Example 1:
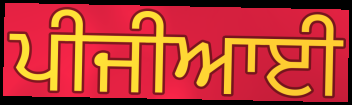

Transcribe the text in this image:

ਪੀਜੀਆਈ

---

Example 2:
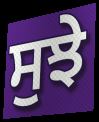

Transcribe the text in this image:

ਸੁਝੇ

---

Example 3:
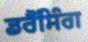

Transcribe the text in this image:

ਡਰੈੱਸਿੰਗ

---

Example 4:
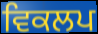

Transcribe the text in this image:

ਵਿਕਲਪ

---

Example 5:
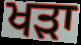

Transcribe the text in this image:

ਖੜਾ